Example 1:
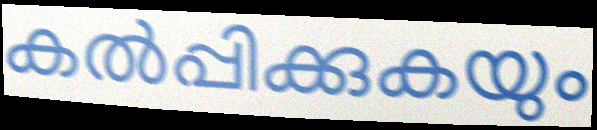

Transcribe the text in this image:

കൽപ്പിക്കുകയും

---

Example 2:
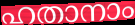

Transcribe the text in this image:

ഹതാനാം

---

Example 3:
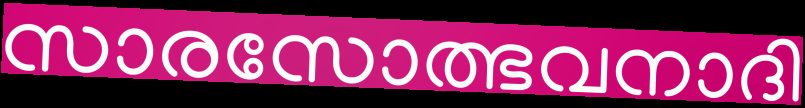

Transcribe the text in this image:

സാരസോത്ഭവനാദി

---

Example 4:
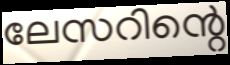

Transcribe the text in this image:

ലേസറിന്റെ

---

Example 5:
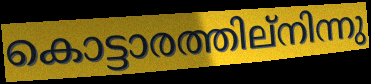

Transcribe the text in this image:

കൊട്ടാരത്തില്നിന്നു